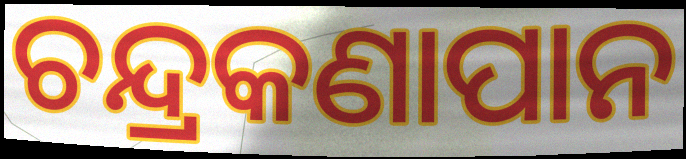
ଚନ୍ଦ୍ରକଣାପାନ